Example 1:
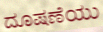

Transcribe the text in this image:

ದೂಷಣೆಯು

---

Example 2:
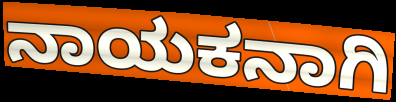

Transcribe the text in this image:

ನಾಯಕನಾಗಿ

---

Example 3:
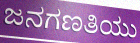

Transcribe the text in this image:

ಜನಗಣತಿಯು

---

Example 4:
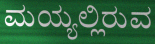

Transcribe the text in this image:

ಮಯ್ಯಲ್ಲಿರುವ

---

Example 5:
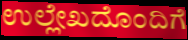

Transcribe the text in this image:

ಉಲ್ಲೇಖದೊಂದಿಗೆ